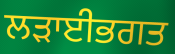
ਲੜਾਈਭਗਤ